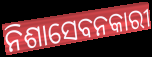
ନିଶାସେବନକାରୀ